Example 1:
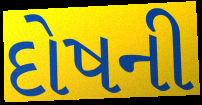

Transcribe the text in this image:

દોષની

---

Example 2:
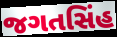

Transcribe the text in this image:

જગતસિંહ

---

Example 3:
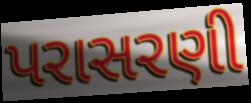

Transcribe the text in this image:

પરાસરણી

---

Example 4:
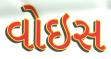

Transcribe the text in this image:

વોઇસ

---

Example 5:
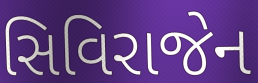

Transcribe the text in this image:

સિવિરાજેન